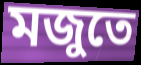
মজুতে